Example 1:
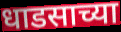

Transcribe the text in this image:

धाडसाच्या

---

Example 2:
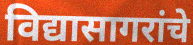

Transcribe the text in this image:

विद्यासागरांचे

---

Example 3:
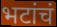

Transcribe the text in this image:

भटांचं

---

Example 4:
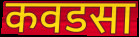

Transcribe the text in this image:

कवडसा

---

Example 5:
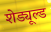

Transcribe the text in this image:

शेड्यूल्ड